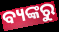
ବ୍ୟଙ୍କରୁ